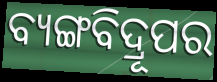
ବ୍ୟଙ୍ଗବିଦ୍ରୂପର